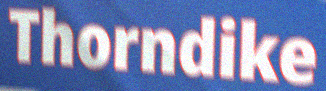
Thorndike